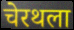
चेरथला